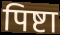
पिष्टा